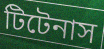
টিটেনাস